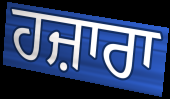
ਹਜ਼ਾਰਾ